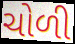
ચોળી